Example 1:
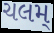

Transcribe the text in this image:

ચલમ્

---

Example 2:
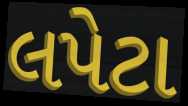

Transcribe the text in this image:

લપેટા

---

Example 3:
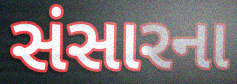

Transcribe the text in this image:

સંસારના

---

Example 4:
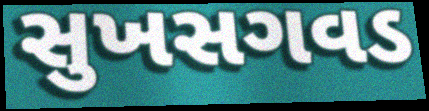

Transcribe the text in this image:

સુખસગવડ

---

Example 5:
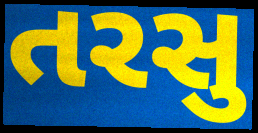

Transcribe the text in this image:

તરસુ